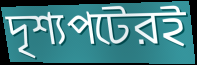
দৃশ্যপটেরই